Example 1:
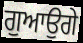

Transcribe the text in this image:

ਗੁਆਉਗੇ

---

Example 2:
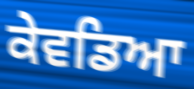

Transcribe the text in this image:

ਕੇਵਡਿਆ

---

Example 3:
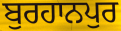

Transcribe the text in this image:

ਬੁਰਹਾਨਪੁਰ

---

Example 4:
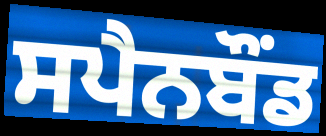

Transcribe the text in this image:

ਸਪੈਨਬੌਂਡ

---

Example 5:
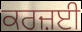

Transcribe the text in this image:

ਕਰਜ਼ਈ